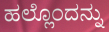
ಹಲ್ಲೊಂದನ್ನು